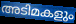
അടിമകളും